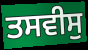
ਤਸਵੀਸੁ